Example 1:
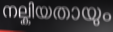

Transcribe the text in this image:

നല്കിയതായും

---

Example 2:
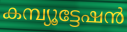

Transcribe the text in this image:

കമ്പ്യൂട്ടേഷൻ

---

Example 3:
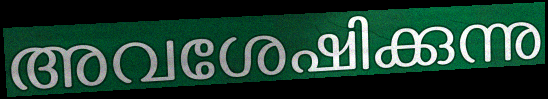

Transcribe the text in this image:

അവശേഷിക്കുന്നു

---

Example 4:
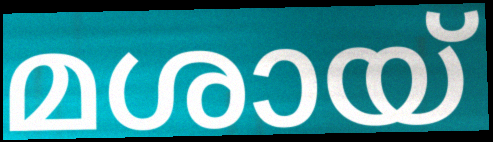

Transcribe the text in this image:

മശായ്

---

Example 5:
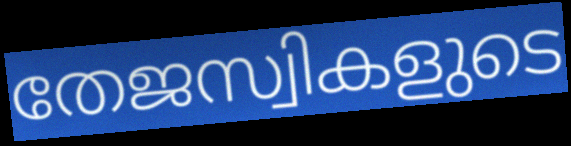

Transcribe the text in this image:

തേജസ്വികളുടെ